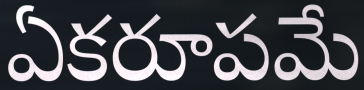
ఏకరూపమే